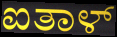
ಐತಾಳ್